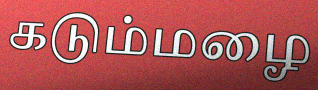
கடும்மழை